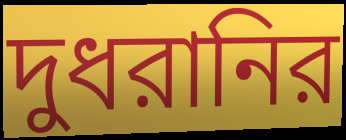
দুধরানির